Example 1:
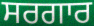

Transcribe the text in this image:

ਸਰਗਾਰ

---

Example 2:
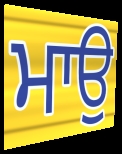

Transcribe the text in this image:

ਮਾਉ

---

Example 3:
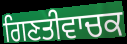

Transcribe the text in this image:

ਗਿਣਤੀਵਾਚਕ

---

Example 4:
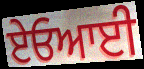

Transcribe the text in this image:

ਏਓਆਈ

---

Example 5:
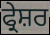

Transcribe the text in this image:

ਫ੍ਰੇਸ਼ਰ